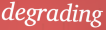
degrading